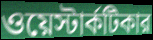
ওয়েস্টার্কটিকার